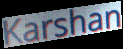
Karshan